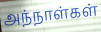
அந்நாள்கள்